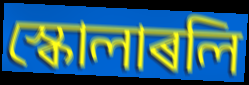
স্কোলাৰলি